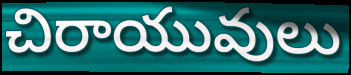
చిరాయువులు